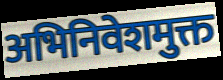
अभिनिवेशमुक्त